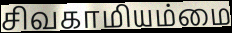
சிவகாமியம்மை